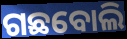
ଗଛବୋଲି